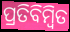
ପ୍ରତିବିମ୍ବିତ